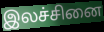
இலச்சினை